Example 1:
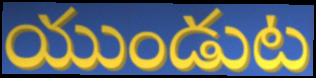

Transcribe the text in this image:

యుండుట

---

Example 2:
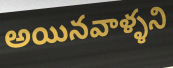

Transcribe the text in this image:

అయినవాళ్ళని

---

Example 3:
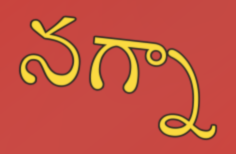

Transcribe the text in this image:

నగ్నా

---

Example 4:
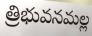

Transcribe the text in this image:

త్రిభువనమల్ల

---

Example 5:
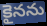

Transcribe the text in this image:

కైనను